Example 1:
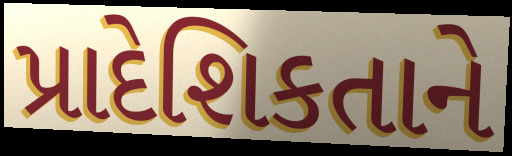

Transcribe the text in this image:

પ્રાદેશિકતાને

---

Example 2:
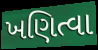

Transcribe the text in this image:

ખણિત્વા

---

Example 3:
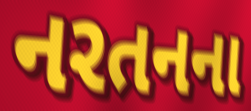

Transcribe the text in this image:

નરતનના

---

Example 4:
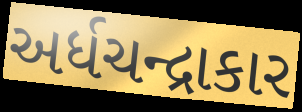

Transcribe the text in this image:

અર્ધચન્દ્રાકાર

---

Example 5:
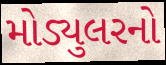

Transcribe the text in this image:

મોડ્યુલરનો